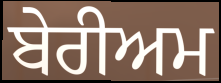
ਬੇਰੀਅਮ